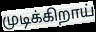
முடிக்கிறாய்